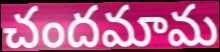
చందమామ